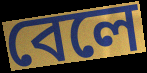
বেলে